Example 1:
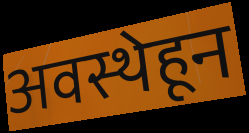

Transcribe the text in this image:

अवस्थेहून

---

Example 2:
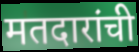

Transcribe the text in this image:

मतदारांची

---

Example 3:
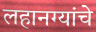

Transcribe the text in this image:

लहानग्यांचे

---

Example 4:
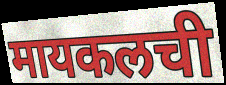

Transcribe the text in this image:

मायकलची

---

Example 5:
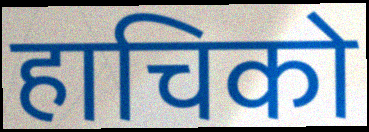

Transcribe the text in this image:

हाचिको